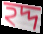
হদ্দ